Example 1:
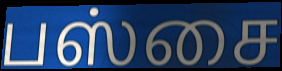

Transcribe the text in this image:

பஸ்சை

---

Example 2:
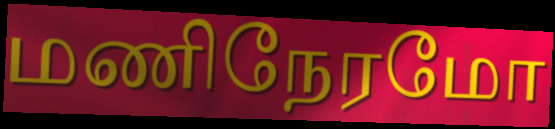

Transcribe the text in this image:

மணிநேரமோ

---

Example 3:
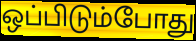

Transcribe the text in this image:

ஒப்பிடும்போது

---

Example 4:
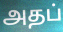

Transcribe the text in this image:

அதப்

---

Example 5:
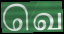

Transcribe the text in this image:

வெ